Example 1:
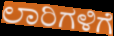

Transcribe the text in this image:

ಲಾರಿಗಳಿಗೆ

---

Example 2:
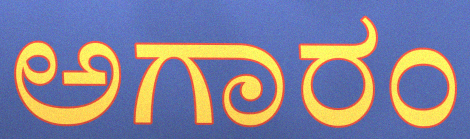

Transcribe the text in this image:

ಅಗಾರಂ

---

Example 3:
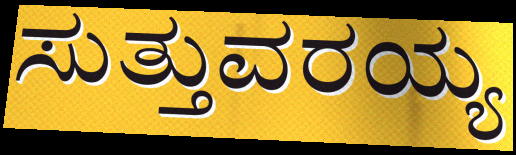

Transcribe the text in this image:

ಸುತ್ತುವರಯ್ಯ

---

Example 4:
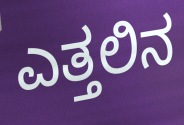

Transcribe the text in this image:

ಎತ್ತಲಿನ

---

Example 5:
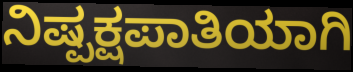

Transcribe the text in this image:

ನಿಷ್ಪಕ್ಷಪಾತಿಯಾಗಿ